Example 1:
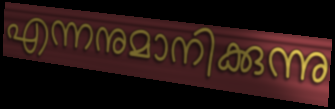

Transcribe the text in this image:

എന്നനുമാനിക്കുന്നു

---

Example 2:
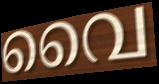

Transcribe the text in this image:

വൈ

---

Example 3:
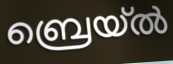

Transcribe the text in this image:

ബ്രെയ്ൽ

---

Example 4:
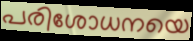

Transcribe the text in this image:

പരിശോധനയെ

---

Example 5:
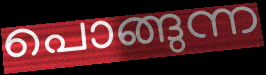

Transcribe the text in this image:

പൊങ്ങുന്ന